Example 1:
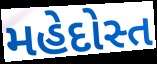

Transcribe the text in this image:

મહેદોસ્ત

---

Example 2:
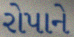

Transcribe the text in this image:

રોપાને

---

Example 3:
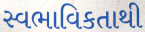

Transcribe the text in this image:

સ્વભાવિકતાથી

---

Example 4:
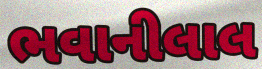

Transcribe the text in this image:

ભવાનીલાલ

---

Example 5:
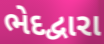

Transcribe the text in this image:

ભેદદ્વારા